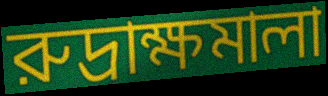
রুদ্রাক্ষমালা